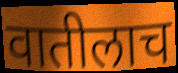
वातीलाच